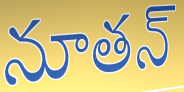
నూతన్